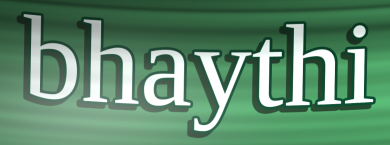
bhaythi